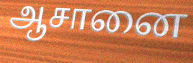
ஆசானை